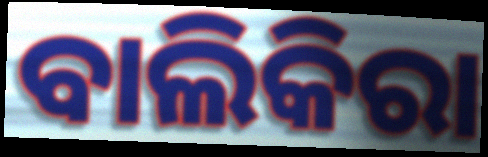
ବାଲିକିରା